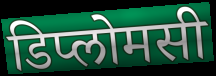
डिप्लोमसी